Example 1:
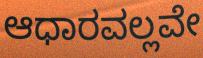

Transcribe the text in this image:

ಆಧಾರವಲ್ಲವೇ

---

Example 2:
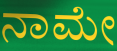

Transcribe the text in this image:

ನಾಮೇ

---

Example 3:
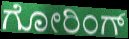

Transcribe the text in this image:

ಗೋರಿಂಗ್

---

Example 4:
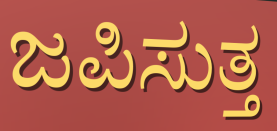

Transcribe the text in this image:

ಜಪಿಸುತ್ತ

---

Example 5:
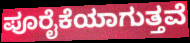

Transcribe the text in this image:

ಪೂರೈಕೆಯಾಗುತ್ತವೆ